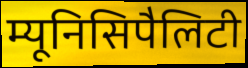
म्यूनिसिपैलिटी